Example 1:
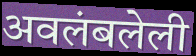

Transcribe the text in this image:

अवलंबलेली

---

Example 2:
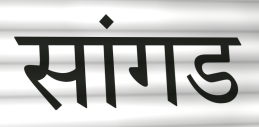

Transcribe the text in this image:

सांगड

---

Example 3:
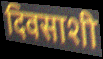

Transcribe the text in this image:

दिवसाशी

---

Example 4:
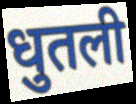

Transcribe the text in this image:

धुतली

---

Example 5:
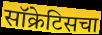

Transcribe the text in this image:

सॉक्रेटिसचा